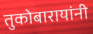
तुकोबारायांनी